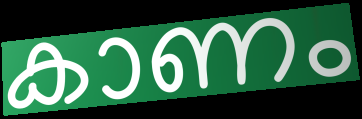
കാണം